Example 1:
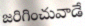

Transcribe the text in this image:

జరిగించువాడే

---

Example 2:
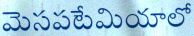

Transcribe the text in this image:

మెసపటేమియాలో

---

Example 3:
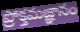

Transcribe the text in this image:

ప్రోక్తమజ్ఞానం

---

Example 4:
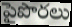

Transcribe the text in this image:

పైపొరలు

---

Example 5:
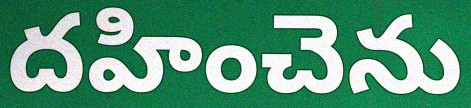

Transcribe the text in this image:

దహించెను